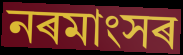
নৰমাংসৰ